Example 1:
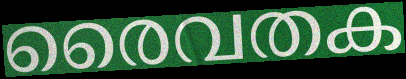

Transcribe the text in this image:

രൈവതക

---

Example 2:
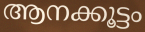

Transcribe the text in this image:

ആനക്കൂട്ടം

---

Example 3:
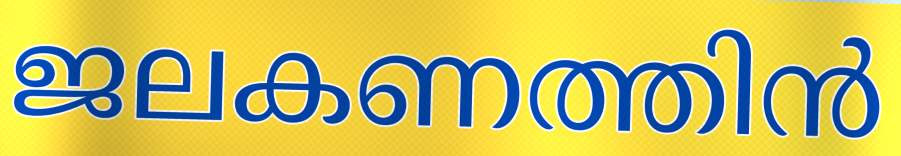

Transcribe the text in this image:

ജലകണത്തിൻ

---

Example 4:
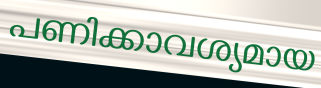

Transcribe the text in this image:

പണിക്കാവശ്യമായ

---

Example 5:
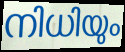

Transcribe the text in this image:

നിധിയും